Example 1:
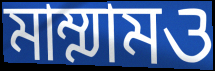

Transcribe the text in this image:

মাম্মামও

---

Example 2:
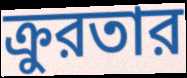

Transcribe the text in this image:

ক্রুরতার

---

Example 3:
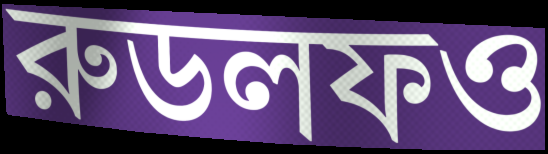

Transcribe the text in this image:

রুডলফও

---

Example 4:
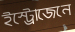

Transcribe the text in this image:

ইস্ট্রোজেনে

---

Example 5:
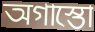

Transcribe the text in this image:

অগাস্তো